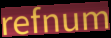
refnum